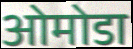
ओमोडा